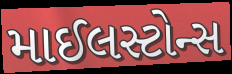
માઈલસ્ટોન્સ